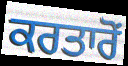
ਕਰਤਾਰੋਂ